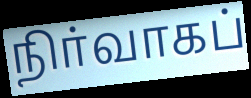
நிர்வாகப்